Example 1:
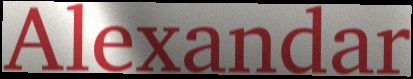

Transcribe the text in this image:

Alexandar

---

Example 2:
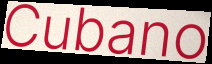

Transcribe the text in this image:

Cubano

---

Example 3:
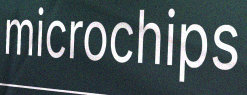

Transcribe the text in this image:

microchips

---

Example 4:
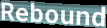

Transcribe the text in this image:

Rebound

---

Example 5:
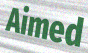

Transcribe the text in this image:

Aimed